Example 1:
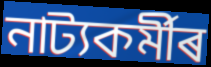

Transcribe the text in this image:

নাট্যকৰ্মীৰ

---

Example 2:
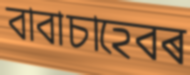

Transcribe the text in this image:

বাবাচাহেবৰ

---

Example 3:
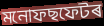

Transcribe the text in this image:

মনোফছফেটৰ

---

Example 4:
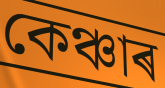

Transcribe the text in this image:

কেঞ্চাৰ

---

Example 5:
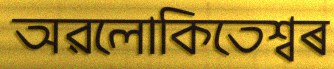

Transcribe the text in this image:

অৱলোকিতেশ্বৰ